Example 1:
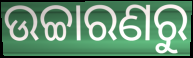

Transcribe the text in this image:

ଉଚ୍ଚାରଣରୁ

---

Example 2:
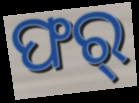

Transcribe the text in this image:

ଫର୍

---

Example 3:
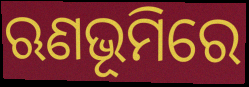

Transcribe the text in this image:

ଋଣଭୂମିରେ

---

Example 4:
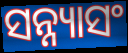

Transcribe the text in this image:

ସନ୍ନ୍ୟାସଂ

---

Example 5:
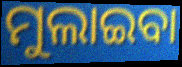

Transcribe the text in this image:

ମୁଲାଇବା